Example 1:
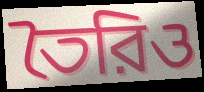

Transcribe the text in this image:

তৈরিও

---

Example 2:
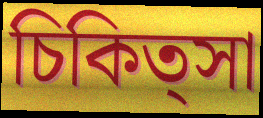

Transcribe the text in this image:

চিকিত্সা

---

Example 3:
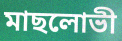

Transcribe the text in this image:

মাছলোভী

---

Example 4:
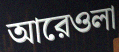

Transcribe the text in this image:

আরেওলা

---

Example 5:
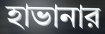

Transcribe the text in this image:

হাভানার